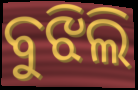
ବୁଝିଲି